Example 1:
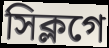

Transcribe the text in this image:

সিক্লগে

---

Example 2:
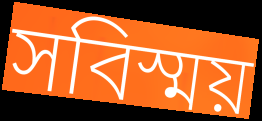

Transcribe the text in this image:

সবিস্ময়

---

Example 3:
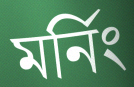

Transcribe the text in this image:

মর্নিং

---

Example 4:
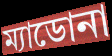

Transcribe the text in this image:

ম্যাডোনা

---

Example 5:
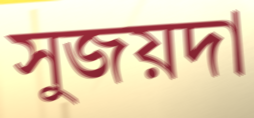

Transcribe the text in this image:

সুজয়দা